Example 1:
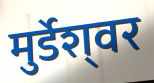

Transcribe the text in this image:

मुर्डेश्वर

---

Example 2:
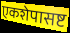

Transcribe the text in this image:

एकशेपासष्ट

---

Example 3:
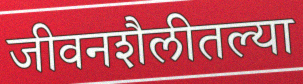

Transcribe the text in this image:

जीवनशैलीतल्या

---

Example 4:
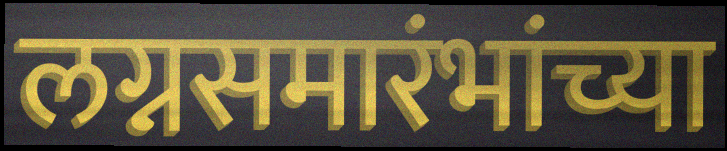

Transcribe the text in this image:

लग्नसमारंभांच्या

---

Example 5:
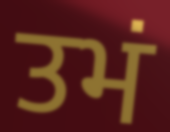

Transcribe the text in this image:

उभं